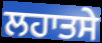
ਲਹਾਤਸੇ